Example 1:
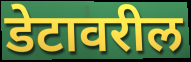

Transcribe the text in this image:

डेटावरील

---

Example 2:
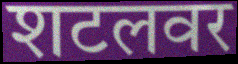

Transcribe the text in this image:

शटलवर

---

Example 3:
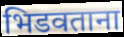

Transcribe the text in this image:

भिडवताना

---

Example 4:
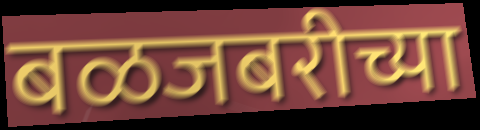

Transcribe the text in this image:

बळजबरीच्या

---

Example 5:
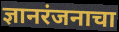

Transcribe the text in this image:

ज्ञानरंजनाचा